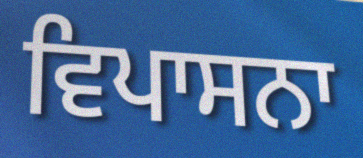
ਵਿਪਾਸਨਾ